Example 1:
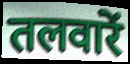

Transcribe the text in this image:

तलवारें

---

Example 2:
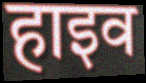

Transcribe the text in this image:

हाइव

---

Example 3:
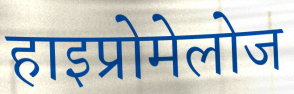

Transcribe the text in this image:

हाइप्रोमेलोज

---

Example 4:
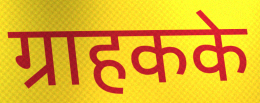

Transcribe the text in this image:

ग्राहकके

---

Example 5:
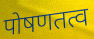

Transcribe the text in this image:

पोषणतत्व